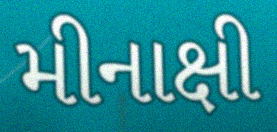
મીનાક્ષી